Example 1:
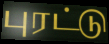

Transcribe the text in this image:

புரட்டு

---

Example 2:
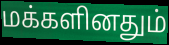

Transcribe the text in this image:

மக்களினதும்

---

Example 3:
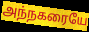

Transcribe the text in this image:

அந்நகரையே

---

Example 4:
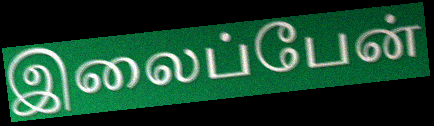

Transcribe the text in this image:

இலைப்பேன்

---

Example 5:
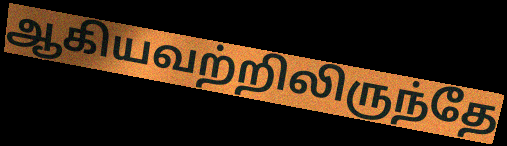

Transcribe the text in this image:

ஆகியவற்றிலிருந்தே